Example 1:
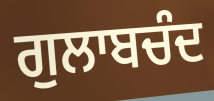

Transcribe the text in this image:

ਗੁਲਾਬਚੰਦ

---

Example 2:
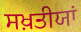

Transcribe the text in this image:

ਸਖ਼ਤੀਯਾਂ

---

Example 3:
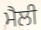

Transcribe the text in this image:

ਮੈਲੀ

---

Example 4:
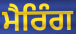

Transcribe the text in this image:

ਮੈਰਿੰਗ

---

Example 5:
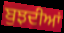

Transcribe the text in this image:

ਬੁਝਦੀਆਂ